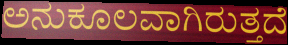
ಅನುಕೂಲವಾಗಿರುತ್ತದೆ